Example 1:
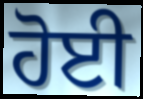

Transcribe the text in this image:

ਹੋਈ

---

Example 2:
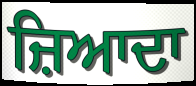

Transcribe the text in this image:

ਜ਼ਿਆਦਾ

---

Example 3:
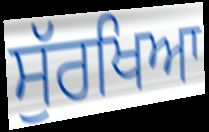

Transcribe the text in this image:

ਸੁੱਰਖਿਆ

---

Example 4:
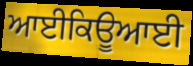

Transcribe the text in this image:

ਆਈਕਿਊਆਈ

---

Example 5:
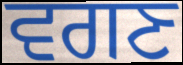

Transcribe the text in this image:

ਵਗਣ